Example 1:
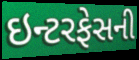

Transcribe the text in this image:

ઇન્ટરફેસની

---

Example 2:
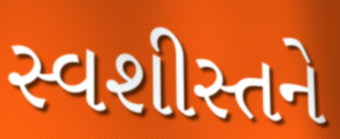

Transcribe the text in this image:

સ્વશીસ્તને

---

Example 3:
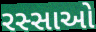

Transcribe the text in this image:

રસ્સાઓ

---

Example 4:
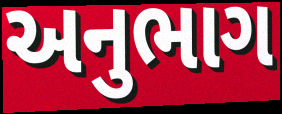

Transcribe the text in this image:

અનુભાગ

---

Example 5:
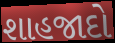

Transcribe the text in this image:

શાહજાદો